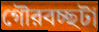
গৌরবচ্ছটা